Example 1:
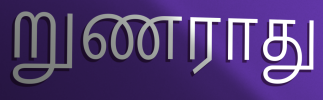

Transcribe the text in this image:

றுணராது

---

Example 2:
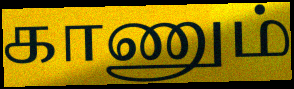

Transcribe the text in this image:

காணும்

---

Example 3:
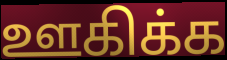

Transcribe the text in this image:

ஊகிக்க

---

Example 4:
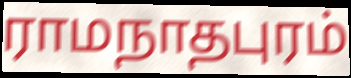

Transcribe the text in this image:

ராமநாதபுரம்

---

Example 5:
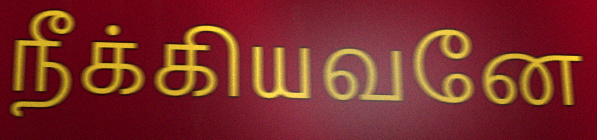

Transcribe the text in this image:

நீக்கியவனே